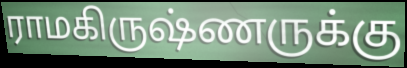
ராமகிருஷ்ணருக்கு